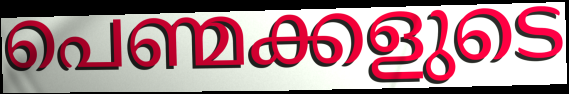
പെണ്മക്കളുടെ